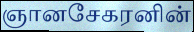
ஞானசேகரனின்